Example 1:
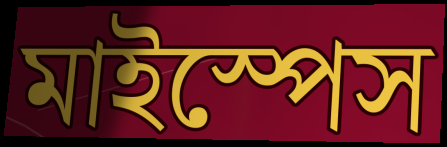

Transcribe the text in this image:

মাইস্পেস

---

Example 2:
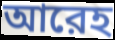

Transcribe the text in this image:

আরেহ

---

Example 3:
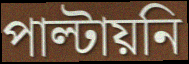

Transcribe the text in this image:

পাল্টায়নি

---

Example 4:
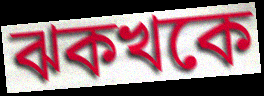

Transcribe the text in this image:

ঝকখকে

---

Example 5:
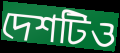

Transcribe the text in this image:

দেশটিও